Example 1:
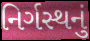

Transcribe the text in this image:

નિર્ગસ્થનું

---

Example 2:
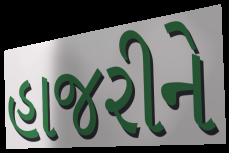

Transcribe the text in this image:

હાજરીને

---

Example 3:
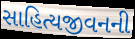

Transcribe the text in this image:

સાહિત્યજીવનની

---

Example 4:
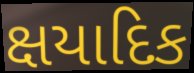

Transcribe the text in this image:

ક્ષયાદિક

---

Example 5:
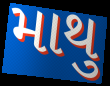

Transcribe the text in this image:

માથુ